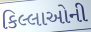
કિલ્લાઓની